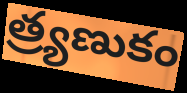
త్ర్యణుకం